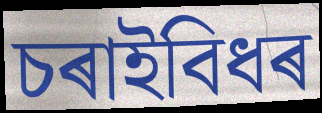
চৰাইবিধৰ